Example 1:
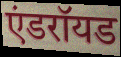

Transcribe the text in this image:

एंडरॉयड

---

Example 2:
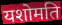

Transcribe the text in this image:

यशोमति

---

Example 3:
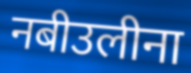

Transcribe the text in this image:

नबीउलीना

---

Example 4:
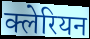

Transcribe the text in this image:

क्लेरियन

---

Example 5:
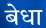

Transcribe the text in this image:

बेधा